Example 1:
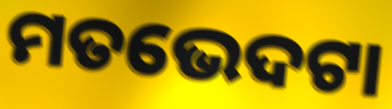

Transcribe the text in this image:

ମତଭେଦଟା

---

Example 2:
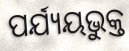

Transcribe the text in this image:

ପର୍ଯ୍ୟୟଭୁକ୍ତ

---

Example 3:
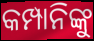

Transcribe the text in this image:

କମ୍ପାନିଙ୍କୁ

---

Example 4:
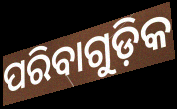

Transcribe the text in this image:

ପରିବାଗୁଡ଼ିକ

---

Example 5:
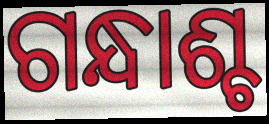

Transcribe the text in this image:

ଗନ୍ଧାଶ୍ଚ